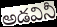
అడవినీ